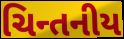
ચિન્તનીય